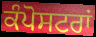
ਕੰਪੋਸਟਰਾਂ